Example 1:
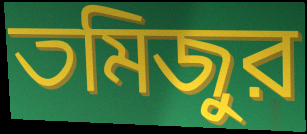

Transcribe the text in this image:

তমিজুর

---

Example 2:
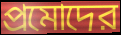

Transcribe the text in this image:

প্রমোদের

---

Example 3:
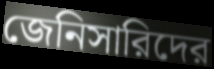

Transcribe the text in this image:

জেনিসারিদের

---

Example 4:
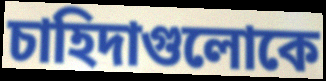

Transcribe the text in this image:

চাহিদাগুলোকে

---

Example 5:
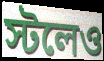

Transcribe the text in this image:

স্টলেও